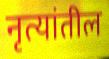
नृत्यांतील